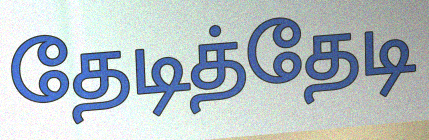
தேடித்தேடி